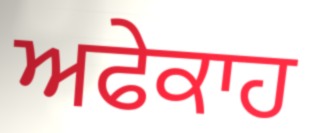
ਅਫੇਕਾਹ